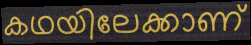
കഥയിലേക്കാണ്